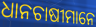
ଧାନଚାଷୀମାନେ